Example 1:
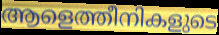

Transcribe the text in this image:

ആളെത്തീനികളുടെ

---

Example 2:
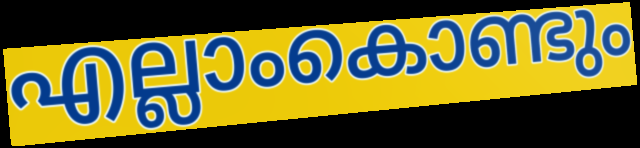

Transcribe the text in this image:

എല്ലാംകൊണ്ടും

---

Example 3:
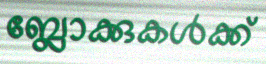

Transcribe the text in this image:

ബ്ലോക്കുകൾക്ക്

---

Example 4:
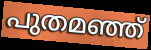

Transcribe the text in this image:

പുതമഞ്ഞ്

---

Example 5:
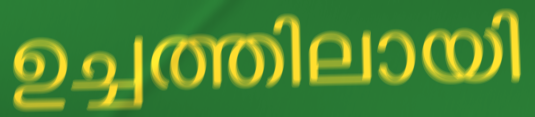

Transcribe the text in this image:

ഉച്ചത്തിലായി